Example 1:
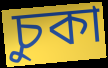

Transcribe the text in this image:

চুকা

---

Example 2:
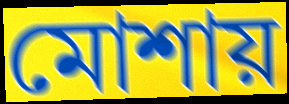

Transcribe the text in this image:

মোশায়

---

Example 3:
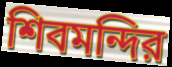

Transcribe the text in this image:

শিবমন্দির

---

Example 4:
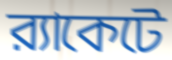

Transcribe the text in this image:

র‍্যাকেটে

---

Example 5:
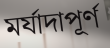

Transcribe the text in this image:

মর্যাদাপূর্ণ